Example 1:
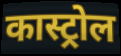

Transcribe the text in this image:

कास्ट्रोल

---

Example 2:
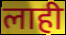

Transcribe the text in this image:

लाही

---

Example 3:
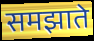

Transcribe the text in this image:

समझाते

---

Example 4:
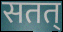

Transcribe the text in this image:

सतत्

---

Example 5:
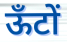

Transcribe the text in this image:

ऊँटों